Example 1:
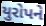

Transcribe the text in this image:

યુરોપને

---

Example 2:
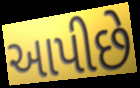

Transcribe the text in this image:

આપીછે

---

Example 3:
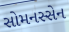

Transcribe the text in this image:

સોમનસ્સેન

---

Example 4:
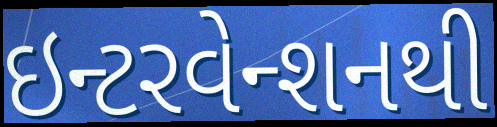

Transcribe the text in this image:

ઇન્ટરવેન્શનથી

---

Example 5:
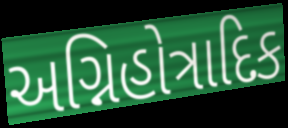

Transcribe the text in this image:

અગ્નિહોત્રાદિક